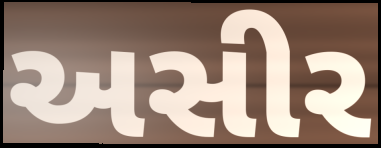
અસીર